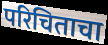
परिचिताचा